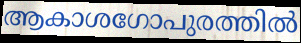
ആകാശഗോപുരത്തിൽ